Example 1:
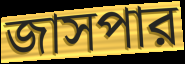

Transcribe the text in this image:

জাসপার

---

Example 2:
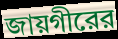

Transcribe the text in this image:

জায়গীরের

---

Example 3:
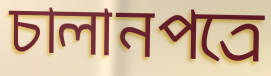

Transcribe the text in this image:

চালানপত্রে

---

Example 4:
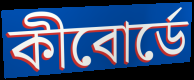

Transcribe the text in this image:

কীবোর্ডে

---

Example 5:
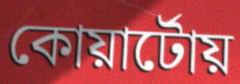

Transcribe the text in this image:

কোয়ার্টোয়